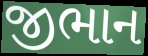
જીભાન